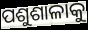
ପଶୁଶାଳାକୁ